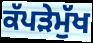
ਕੱਪੜੇਮੁੱਖ